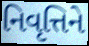
નિવૃત્તિને